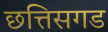
छत्तिसगड